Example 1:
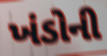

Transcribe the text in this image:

ખંડોની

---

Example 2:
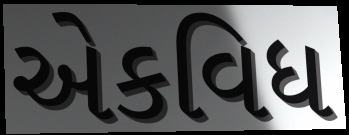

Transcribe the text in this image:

એકવિધ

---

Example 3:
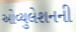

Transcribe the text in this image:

ઓવ્યુલેશનની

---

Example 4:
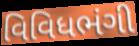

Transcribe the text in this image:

વિવિધભંગી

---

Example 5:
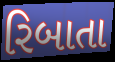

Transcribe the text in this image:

રિબાતા